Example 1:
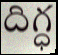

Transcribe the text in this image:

దిగ్ధ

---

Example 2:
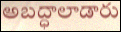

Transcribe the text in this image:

అబద్ధాలాడారు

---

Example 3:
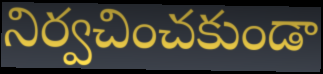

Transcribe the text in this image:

నిర్వచించకుండా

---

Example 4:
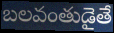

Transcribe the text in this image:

బలవంతుడైతే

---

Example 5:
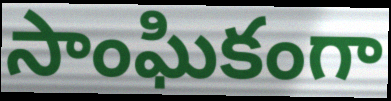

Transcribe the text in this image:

సాంఘికంగా